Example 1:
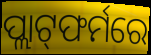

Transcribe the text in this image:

ପ୍ଲାଟ୍‌ଫର୍ମରେ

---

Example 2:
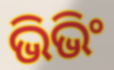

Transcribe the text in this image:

ଭିଭିଂ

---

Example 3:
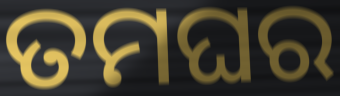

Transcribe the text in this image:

ତମଘର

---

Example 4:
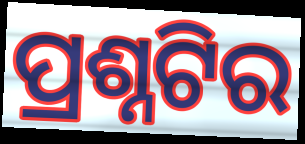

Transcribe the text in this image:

ପ୍ରଶ୍ନଟିର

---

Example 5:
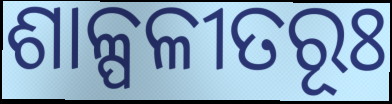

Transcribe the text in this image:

ଶାଳ୍ପଳୀତରୂଃ